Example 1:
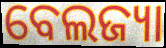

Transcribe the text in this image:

ବେଲଜ୍ୟା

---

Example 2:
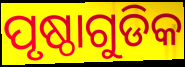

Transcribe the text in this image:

ପୃଷ୍ଠାଗୁଡିକ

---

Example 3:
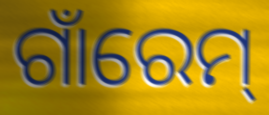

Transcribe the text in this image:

ଗାଁରେମ୍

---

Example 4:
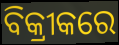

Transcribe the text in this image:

ବିକ୍ରୀକରେ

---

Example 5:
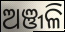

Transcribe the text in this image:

ଅଞ୍ଜଳି